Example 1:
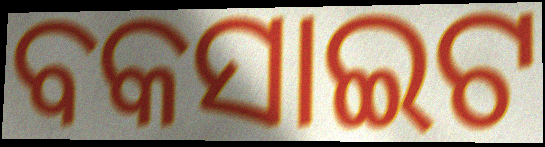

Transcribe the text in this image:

ବକସାଇଟ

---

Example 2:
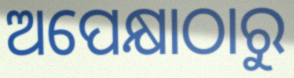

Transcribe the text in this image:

ଅପେକ୍ଷାଠାରୁ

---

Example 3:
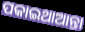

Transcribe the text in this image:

ପକାଇଥାଆନ୍ତା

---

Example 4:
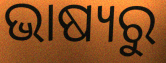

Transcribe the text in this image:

ଭାଷ୍ୟରୁ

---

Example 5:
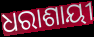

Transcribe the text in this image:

ଧରାଶାୟୀ